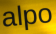
alpo